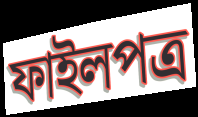
ফাইলপত্র